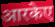
आरकेए